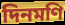
দিনমণি